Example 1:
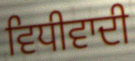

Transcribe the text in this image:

ਵਿਧੀਵਾਦੀ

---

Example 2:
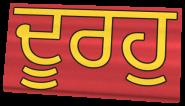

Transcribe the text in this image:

ਦੂਰਹੁ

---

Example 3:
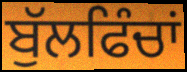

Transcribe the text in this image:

ਬੁੱਲਫਿੰਚਾਂ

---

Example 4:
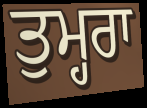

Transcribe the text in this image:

ਤੁਮ੍ਹਰਾ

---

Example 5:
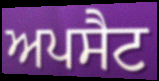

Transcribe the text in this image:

ਅਪਸੈਟ